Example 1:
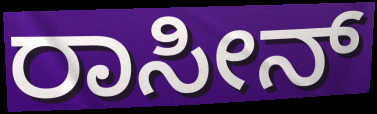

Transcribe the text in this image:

ರಾಸೀನ್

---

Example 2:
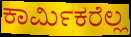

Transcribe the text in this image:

ಕಾರ್ಮಿಕರೆಲ್ಲ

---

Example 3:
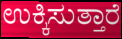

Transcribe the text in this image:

ಉಕ್ಕಿಸುತ್ತಾರೆ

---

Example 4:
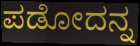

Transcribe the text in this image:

ಪಡೋದನ್ನ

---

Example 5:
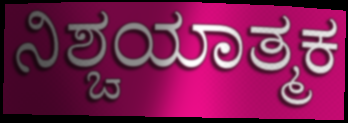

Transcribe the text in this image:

ನಿಶ್ಚಯಾತ್ಮಕ